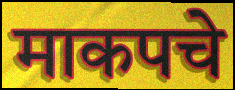
माकपचे